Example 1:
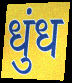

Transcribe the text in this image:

धुंध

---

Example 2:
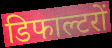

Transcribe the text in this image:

डिफाल्टरों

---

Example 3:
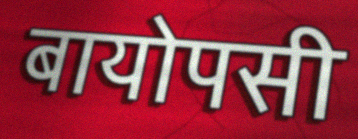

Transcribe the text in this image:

बायोपसी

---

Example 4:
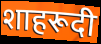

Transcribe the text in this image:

शाहरूदी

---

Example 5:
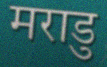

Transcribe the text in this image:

मराडु